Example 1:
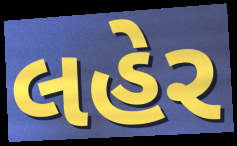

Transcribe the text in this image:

લહેર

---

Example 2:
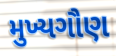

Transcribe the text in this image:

મુખ્યગૌણ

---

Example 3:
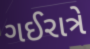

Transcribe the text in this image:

ગઈરાત્રે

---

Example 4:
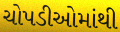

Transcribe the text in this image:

ચોપડીઓમાંથી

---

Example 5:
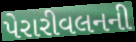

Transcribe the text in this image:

પેરારીવલનની